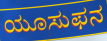
ಯೂಸುಫನ